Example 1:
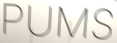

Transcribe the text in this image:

PUMS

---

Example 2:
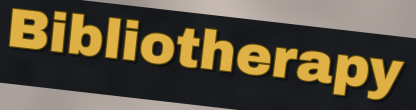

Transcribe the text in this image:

Bibliotherapy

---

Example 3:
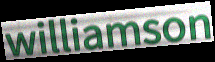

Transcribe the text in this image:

williamson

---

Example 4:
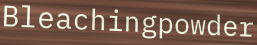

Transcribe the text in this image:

Bleachingpowder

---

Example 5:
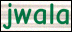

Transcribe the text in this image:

jwala